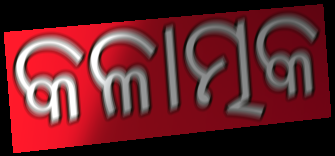
କଳାତ୍ମକ